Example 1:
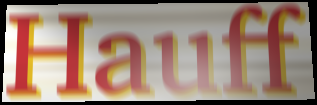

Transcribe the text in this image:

Hauff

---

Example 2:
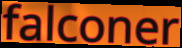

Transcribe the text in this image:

falconer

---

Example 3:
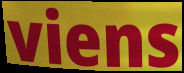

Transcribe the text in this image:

viens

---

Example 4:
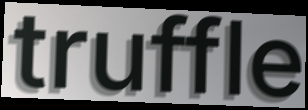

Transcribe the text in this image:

truffle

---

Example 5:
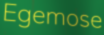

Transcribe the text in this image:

Egemose